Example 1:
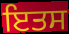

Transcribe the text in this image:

ਇਤਸ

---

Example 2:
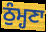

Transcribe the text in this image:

ਠੁੰਮ੍ਹਣਾ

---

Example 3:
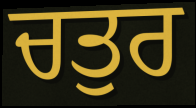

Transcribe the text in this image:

ਚਤੁਰ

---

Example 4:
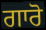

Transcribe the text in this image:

ਗਾਰੋ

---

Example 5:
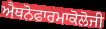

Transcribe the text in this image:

ਐਥਨੋਫਾਰਮਾਕੋਲੋਜੀ